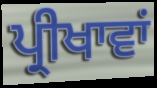
ਪ੍ਰੀਖਾਵਾਂ